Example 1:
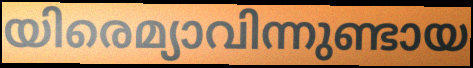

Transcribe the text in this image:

യിരെമ്യാവിന്നുണ്ടായ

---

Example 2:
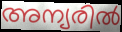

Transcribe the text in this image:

അന്യരിൽ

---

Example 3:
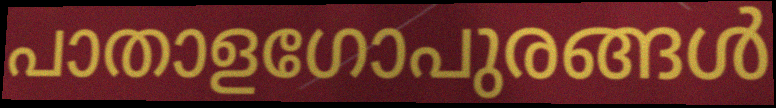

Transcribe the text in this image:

പാതാളഗോപുരങ്ങൾ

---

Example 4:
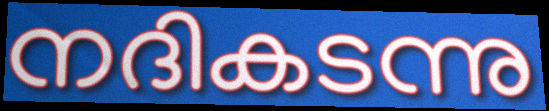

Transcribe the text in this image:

നദികടന്നു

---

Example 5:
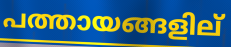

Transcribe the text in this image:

പത്തായങ്ങളില്